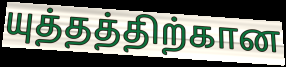
யுத்தத்திற்கான